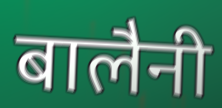
बालैनी